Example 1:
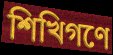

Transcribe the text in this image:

শিখিগণে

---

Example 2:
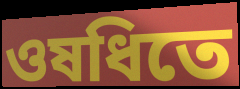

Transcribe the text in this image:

ওষধিতে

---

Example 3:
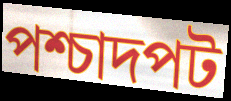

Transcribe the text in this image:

পশ্চাদপট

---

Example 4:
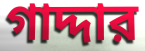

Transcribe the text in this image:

গাদ্দার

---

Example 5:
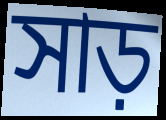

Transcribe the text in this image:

সাড়